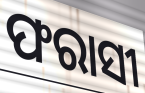
ଫରାସୀ